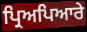
ਪ੍ਰਿਅਪਿਆਰੇ